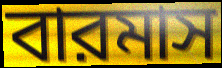
বারমাস